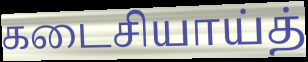
கடைசியாய்த்